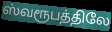
ஸ்வரூபத்திலே